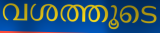
വശത്തൂടെ